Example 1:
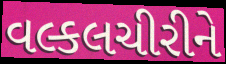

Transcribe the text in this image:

વલ્કલચીરીને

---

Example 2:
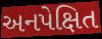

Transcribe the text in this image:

અનપેક્ષિત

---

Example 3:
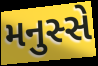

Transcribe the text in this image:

મનુસ્સે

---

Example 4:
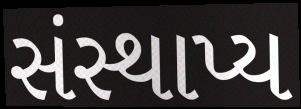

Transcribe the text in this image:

સંસ્થાપ્ય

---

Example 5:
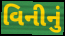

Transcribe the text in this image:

વિનીનું